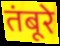
तंबूरे